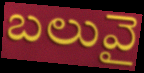
బలువై